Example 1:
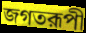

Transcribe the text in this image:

জগতরূপী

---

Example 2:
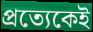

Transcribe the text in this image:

প্রত্যেকেই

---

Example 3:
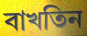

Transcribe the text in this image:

বাখতিন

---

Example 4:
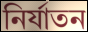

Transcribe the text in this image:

নির্যাতন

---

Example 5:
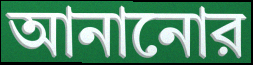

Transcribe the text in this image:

আনানোর